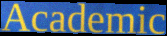
Academic